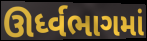
ઊર્ધ્વભાગમાં